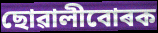
ছোৱালীবোৰক